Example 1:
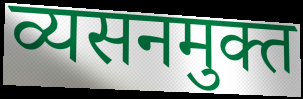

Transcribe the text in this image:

व्यसनमुक्त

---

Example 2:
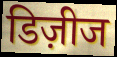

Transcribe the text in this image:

डिज़ीज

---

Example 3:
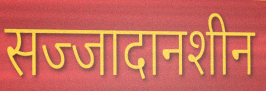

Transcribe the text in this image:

सज्जादानशीन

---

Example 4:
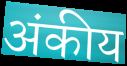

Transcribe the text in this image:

अंकीय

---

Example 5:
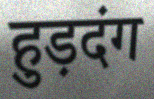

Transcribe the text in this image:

हुड़दंग